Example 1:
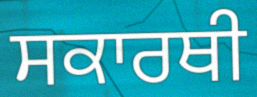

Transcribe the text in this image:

ਸਕਾਰਥੀ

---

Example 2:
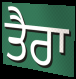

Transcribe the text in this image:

ਤੈਰਾ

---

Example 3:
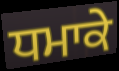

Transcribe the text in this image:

ਧਮਾਕੇ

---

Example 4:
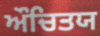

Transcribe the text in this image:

ਔਚਿਤਯ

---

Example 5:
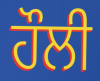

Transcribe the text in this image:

ਹੌਲੀ